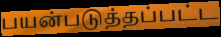
பயன்படுத்தப்பட்ட